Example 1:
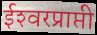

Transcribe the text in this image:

ईश्वरप्राप्ती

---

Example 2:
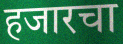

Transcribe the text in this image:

हजारचा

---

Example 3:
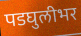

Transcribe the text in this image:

पडघुलीभर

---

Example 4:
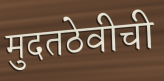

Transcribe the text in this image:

मुदतठेवीची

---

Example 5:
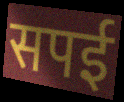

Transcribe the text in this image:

सपई